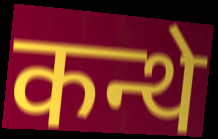
कन्थे